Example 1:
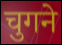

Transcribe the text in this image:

चुगने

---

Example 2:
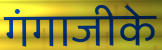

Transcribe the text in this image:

गंगाजीके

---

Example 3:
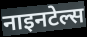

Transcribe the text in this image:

नाइनटेल्स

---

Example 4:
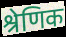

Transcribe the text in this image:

श्रेणिक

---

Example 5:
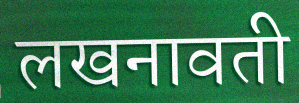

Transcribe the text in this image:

लखनावती